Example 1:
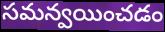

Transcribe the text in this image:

సమన్వయించడం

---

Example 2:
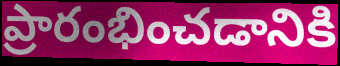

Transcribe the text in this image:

ప్రారంభించడానికి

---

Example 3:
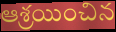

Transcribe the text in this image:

ఆశ్రయించిన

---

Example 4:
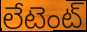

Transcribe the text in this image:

లేటెంట్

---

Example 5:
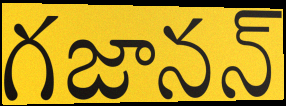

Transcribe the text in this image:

గజానన్